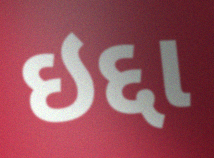
ઇદ્દા